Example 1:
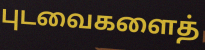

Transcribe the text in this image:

புடவைகளைத்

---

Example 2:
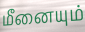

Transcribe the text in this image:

மீனையும்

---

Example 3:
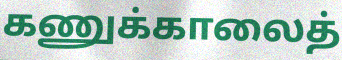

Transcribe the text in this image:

கணுக்காலைத்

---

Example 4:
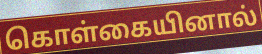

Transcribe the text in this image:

கொள்கையினால்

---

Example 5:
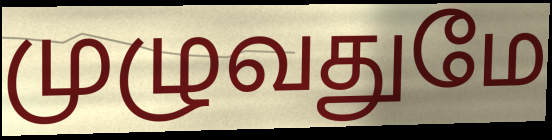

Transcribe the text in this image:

முழுவதுமே